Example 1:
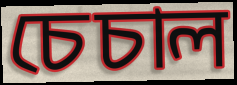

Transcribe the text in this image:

চেচাল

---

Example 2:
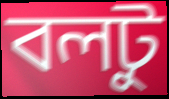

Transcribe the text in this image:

বলটু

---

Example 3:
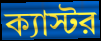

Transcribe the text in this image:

ক্যাস্টর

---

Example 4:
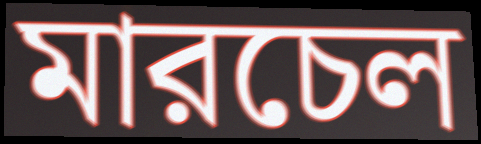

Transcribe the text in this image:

মারচেল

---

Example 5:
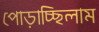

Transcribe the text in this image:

পোড়াচ্ছিলাম